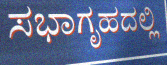
ಸಭಾಗೃಹದಲ್ಲಿ